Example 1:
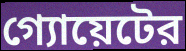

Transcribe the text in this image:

গ্যোয়েটের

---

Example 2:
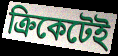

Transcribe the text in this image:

ক্রিকেটেই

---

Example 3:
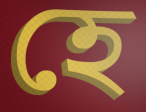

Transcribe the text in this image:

হে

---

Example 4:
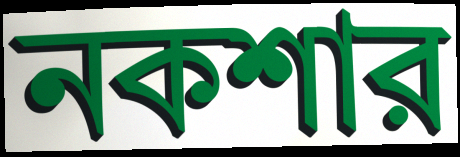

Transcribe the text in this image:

নকশার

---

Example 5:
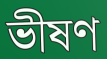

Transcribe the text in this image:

ভীষণ